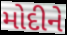
મોદીને